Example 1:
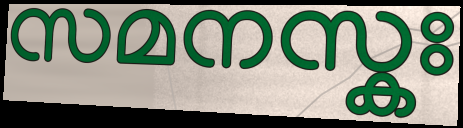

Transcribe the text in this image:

സമനസ്കഃ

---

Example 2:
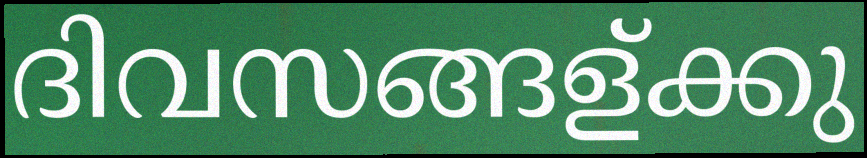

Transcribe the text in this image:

ദിവസങ്ങള്ക്കു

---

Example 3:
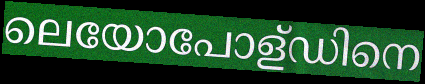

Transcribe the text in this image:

ലെയോപോള്ഡിനെ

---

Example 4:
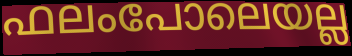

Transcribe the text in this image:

ഫലംപോലെയല്ല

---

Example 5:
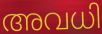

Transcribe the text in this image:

അവധി